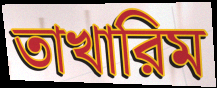
তাখারিম